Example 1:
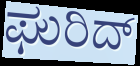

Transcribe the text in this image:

ಘುರಿದ್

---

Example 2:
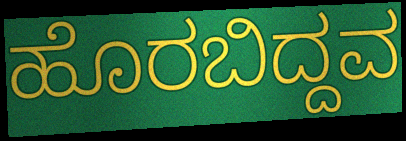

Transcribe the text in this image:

ಹೊರಬಿದ್ದವ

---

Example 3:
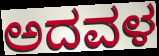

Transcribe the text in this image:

ಅದವಳ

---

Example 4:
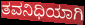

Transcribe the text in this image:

ತವನಿಧಿಯಾಗಿ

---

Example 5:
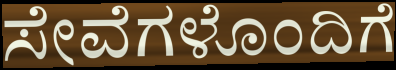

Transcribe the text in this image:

ಸೇವೆಗಳೊಂದಿಗೆ